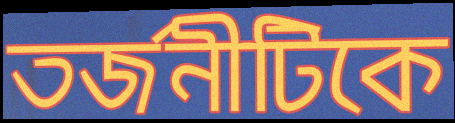
তর্জনীটিকে